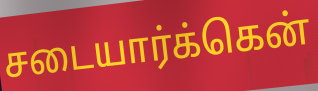
சடையார்க்கென்